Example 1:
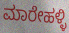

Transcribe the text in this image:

ಮಾರೇಹಳ್ಳಿ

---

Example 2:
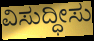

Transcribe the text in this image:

ವಿಸುದ್ಧೀಸು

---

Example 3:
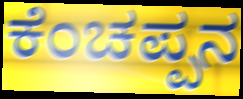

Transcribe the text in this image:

ಕೆಂಚಪ್ಪನ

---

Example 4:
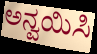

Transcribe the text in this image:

ಅನ್ವಯಿಸಿ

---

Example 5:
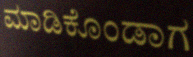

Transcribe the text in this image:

ಮಾಡಿಕೊಂಡಾಗ